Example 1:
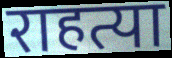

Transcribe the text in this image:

राहत्या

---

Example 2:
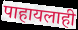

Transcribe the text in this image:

पाहायलाही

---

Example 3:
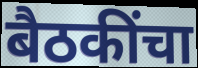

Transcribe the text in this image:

बैठकींचा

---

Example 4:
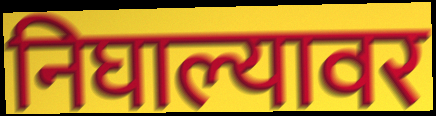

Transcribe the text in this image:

निघाल्यावर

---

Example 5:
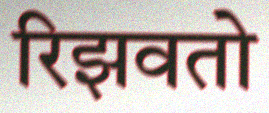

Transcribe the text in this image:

रिझवतो